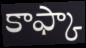
కాఫ్కా